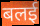
बलई